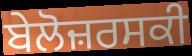
ਬੇਲੋਜ਼ਰਸਕੀ